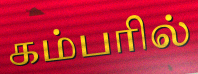
கம்பரில்